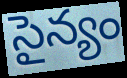
సైన్యం